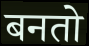
बनतो